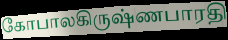
கோபாலகிருஷ்ணபாரதி